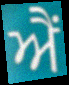
ਐੰ